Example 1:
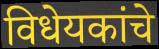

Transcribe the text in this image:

विधेयकांचे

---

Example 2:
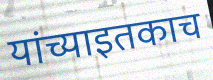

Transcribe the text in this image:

यांच्याइतकाच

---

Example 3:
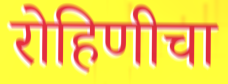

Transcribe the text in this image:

रोहिणीचा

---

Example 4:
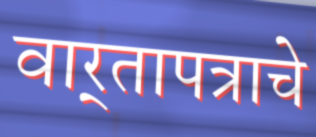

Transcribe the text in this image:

वार्तापत्राचे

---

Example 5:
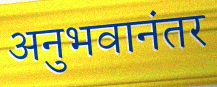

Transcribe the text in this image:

अनुभवानंतर